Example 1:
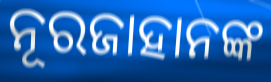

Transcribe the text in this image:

ନୂରଜାହାନଙ୍କ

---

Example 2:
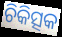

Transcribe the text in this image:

ଚିକିତ୍ସକ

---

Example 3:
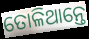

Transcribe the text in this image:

ତୋଳିଥାନ୍ତେ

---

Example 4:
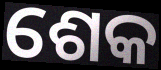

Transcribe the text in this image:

ଶେକ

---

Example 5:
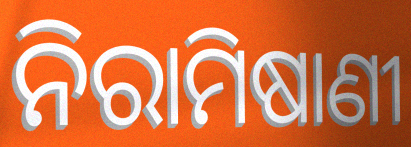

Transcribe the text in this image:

ନିରାମିଷାଣୀ